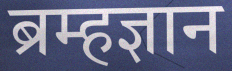
ब्रम्हज्ञान